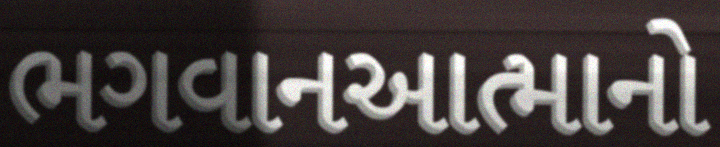
ભગવાનઆત્માનો